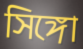
সিঙ্গো